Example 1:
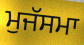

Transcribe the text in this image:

ਮੁਜੱਸਮਾ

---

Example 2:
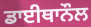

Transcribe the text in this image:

ਡਾਈਥਾਨੌਲ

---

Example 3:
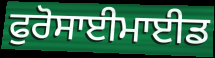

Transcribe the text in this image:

ਫੁਰੋਸਾਈਮਾਈਡ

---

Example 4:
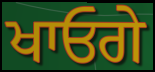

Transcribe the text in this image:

ਖਾਓਗੇ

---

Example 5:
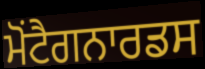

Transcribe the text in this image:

ਮੋਂਟੈਗਨਾਰਡਸ